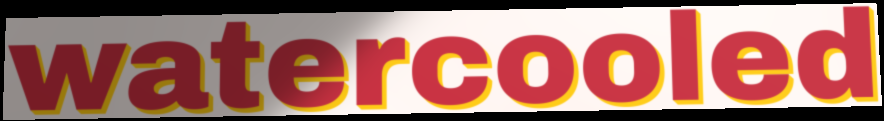
watercooled